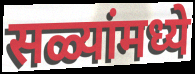
सळ्यांमध्ये